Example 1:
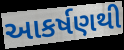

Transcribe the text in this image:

આકર્ષણથી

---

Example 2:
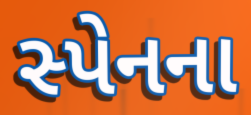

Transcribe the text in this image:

સ્પેનના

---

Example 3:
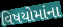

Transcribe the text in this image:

વિષયોમાંના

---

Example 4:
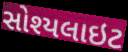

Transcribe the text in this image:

સોશ્યલાઇટ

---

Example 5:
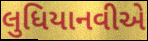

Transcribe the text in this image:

લુધિયાનવીએ